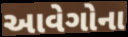
આવેગોના